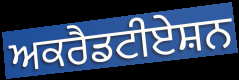
ਅਕਰੈਡਟੀਏਸ਼ਨ